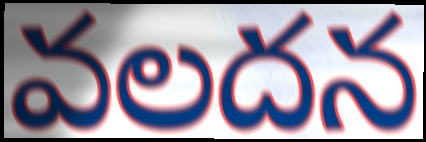
వలదన